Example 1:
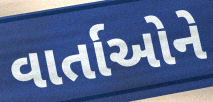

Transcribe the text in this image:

વાર્તાઓને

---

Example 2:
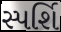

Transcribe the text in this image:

સ્પર્શિ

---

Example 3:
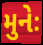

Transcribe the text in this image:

મુનેઃ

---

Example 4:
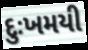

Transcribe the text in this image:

દુઃખમયી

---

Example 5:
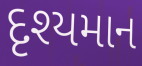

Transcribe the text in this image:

દૃશ્યમાન